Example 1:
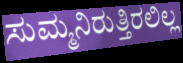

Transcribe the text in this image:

ಸುಮ್ಮನಿರುತ್ತಿರಲಿಲ್ಲ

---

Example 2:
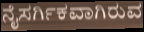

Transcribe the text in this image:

ನೈಸರ್ಗಿಕವಾಗಿರುವ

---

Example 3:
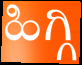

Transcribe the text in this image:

ಹಿಗ್ಗಿ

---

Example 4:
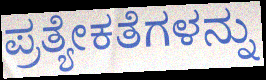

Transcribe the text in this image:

ಪ್ರತ್ಯೇಕತೆಗಳನ್ನು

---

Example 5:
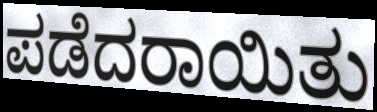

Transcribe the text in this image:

ಪಡೆದರಾಯಿತು